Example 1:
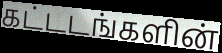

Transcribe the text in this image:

கட்டடங்களின்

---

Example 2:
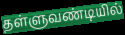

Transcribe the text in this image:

தள்ளுவண்டியில்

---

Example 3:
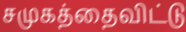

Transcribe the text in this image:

சமுகத்தைவிட்டு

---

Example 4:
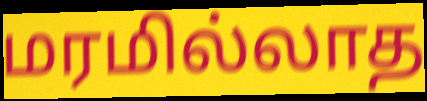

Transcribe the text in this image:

மரமில்லாத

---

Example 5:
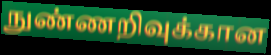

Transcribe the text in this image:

நுண்ணறிவுக்கான